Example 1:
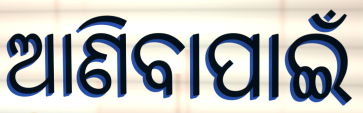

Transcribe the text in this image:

ଆଣିବାପାଇଁ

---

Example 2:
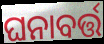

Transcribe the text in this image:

ଘନାବର୍ତ୍ତ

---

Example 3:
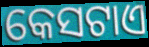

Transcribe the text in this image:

କେସଟାଏ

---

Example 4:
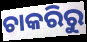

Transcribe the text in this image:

ଚାକରିରୁ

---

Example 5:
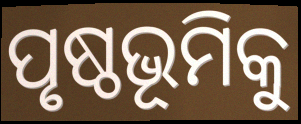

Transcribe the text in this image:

ପୃଷ୍ଠଭୂମିକୁ